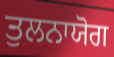
ਤੁਲਨਾਯੋਗ